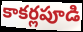
కాకర్లపూడి